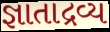
જ્ઞાતાદ્રવ્ય